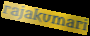
rajakumari